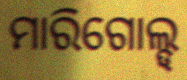
ମାରିଗୋଲ୍ଡ୍